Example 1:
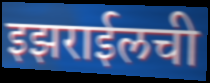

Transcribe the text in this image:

इझराईलची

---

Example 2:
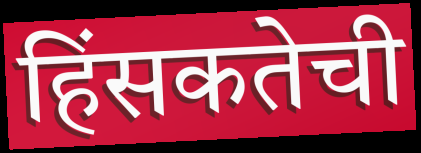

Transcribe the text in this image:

हिंसकतेची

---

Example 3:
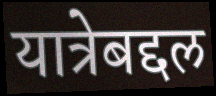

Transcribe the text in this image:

यात्रेबद्दल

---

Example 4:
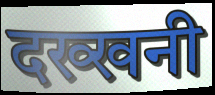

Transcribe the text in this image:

दख्खनी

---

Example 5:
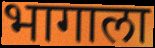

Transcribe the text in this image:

भागाला